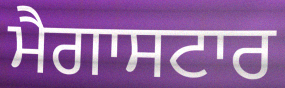
ਮੈਗਾਸਟਾਰ